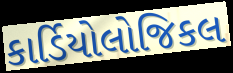
કાર્ડિયોલોજિકલ